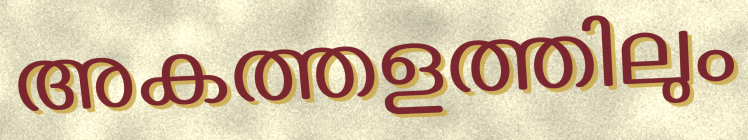
അകത്തളത്തിലും